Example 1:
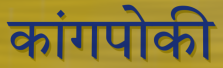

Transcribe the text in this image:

कांगपोकी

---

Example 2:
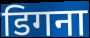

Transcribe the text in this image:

डिगना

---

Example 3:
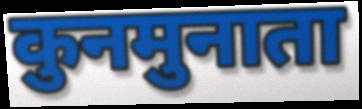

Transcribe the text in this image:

कुनमुनाता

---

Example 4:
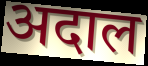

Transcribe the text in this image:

अदाल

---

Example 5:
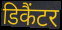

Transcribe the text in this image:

डिकैंटर